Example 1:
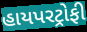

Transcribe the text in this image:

હાયપરટ્રોફી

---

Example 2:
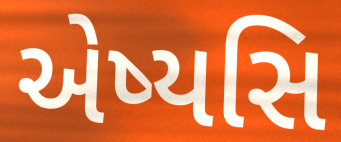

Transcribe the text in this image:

એષ્યસિ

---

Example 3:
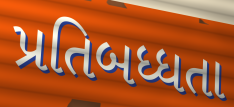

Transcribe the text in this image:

પ્રતિબધ્ધતા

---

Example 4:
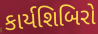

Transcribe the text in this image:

કાર્યશિબિરો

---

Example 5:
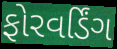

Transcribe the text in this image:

ફોરવર્ડિંગ